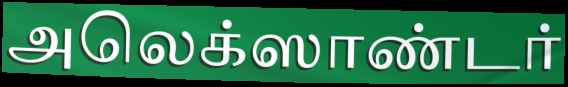
அலெக்ஸாண்டர்